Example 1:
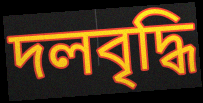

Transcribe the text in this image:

দলবৃদ্ধি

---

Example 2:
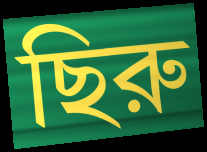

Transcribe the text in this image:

ছিরু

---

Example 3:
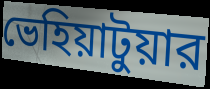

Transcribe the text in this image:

ভেহিয়াটুয়ার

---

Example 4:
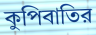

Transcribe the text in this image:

কুপিবাতির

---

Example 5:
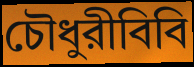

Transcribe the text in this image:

চৌধুরীবিবি